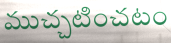
ముచ్చటించటం